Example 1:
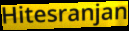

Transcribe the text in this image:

Hitesranjan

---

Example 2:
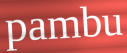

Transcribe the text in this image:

pambu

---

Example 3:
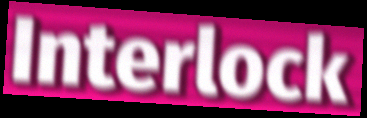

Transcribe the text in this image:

Interlock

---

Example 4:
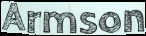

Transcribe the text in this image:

Armson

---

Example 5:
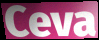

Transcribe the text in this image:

Ceva